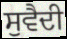
ਸੁਵੈਦੀ